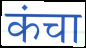
कंचा